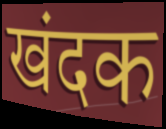
खंदक